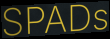
SPADs